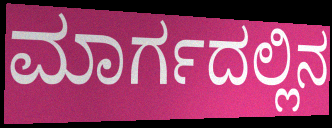
ಮಾರ್ಗದಲ್ಲಿನ